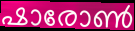
ഷാരോൺ